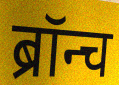
ब्रॉन्च